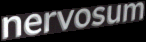
nervosum